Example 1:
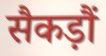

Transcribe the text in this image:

सैकड़ौं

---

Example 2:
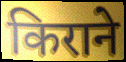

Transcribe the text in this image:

किराने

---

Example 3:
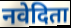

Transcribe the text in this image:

नवेदिता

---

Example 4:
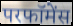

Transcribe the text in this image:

परफॉमेंस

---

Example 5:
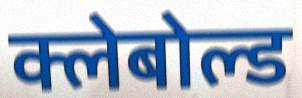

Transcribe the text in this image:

क्लेबोल्ड